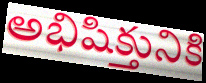
అభిషిక్తునికి